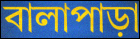
বালাপাড়া